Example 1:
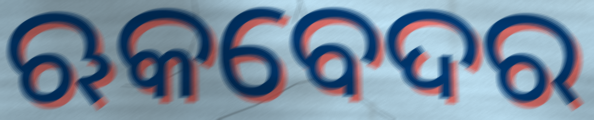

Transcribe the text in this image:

ଋକବେଦର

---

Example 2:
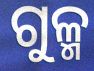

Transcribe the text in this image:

ଗୁଳ୍ମ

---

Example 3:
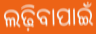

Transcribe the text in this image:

ଲଢ଼ିବାପାଇଁ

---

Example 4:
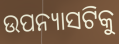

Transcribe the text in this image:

ଉପନ୍ୟାସଟିକୁ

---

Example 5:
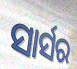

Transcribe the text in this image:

ସାର୍ସର